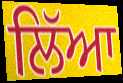
ਲਿੱਆ